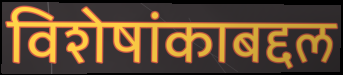
विशेषांकाबद्दल